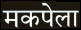
मकपेला